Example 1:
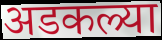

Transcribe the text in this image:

अडकल्या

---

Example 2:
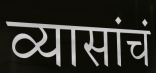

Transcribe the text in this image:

व्यासांचं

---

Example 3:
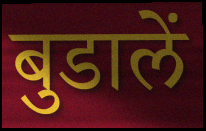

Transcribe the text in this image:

बुडालें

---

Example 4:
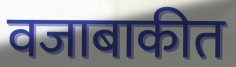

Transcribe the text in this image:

वजाबाकीत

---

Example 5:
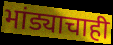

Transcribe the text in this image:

भांड्याचाही